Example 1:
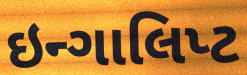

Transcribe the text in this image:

ઇન્ગાલિપ્ટ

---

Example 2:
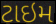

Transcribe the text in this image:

ટાઇમ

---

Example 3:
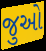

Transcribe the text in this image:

જુઓ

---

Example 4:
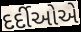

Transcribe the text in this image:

દર્દીઓએ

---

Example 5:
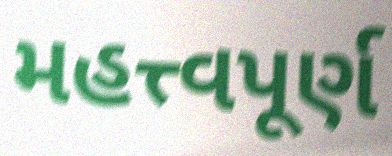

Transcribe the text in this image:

મહત્ત્વપૂર્ણ